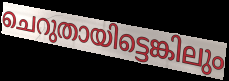
ചെറുതായിട്ടെങ്കിലും